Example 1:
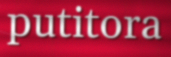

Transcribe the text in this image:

putitora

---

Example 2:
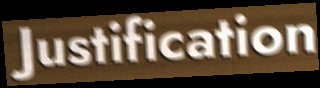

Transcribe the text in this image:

Justification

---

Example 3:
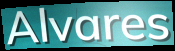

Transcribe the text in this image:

Alvares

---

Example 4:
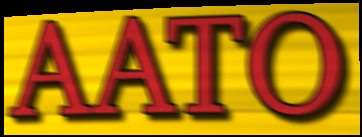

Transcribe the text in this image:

AATO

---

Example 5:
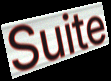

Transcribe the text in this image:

Suite